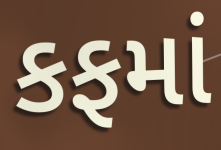
કફમાં